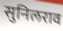
सुनिलराव